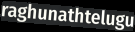
raghunathtelugu